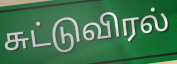
சுட்டுவிரல்